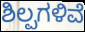
ಶಿಲ್ಪಗಳಿವೆ